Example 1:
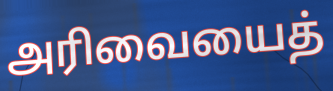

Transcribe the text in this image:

அரிவையைத்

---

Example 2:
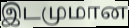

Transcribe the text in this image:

இடமுமான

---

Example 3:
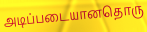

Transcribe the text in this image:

அடிப்படையானதொரு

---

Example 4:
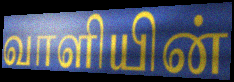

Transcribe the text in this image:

வாளியின்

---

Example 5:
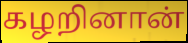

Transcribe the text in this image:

கழறினான்